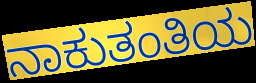
ನಾಕುತಂತಿಯ